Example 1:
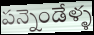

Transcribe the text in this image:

పన్నెండేళ్ళ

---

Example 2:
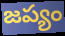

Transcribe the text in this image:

జప్యం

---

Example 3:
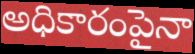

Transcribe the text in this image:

అధికారంపైనా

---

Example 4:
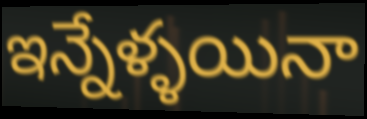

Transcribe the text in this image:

ఇన్నేళ్ళయినా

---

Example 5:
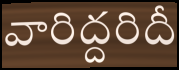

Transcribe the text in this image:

వారిద్దరిదీ